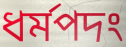
ধর্মপদং